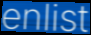
enlist